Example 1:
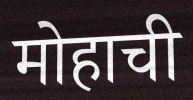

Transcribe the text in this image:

मोहाची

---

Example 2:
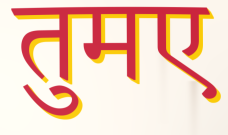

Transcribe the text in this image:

तुमए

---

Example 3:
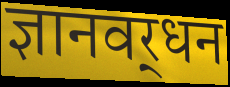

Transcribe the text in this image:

ज्ञानवर्धन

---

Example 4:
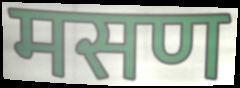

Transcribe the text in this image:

मसण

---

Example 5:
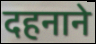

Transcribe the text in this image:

दहनाने